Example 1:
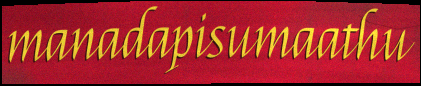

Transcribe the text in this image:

manadapisumaathu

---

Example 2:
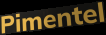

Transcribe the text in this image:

Pimentel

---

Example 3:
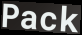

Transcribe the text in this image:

Pack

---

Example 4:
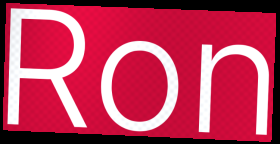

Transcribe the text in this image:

Ron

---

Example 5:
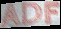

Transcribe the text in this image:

ADF